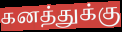
கனத்துக்கு